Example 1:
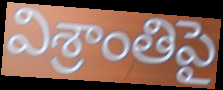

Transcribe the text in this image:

విశ్రాంతిపై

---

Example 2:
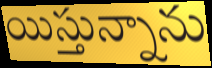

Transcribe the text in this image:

యిస్తున్నాను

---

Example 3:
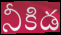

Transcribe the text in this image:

నీకిడ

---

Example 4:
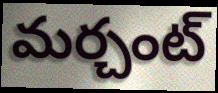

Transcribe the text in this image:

మర్చంట్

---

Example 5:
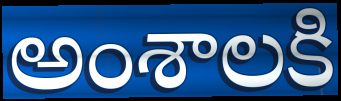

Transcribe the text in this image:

అంశాలకి